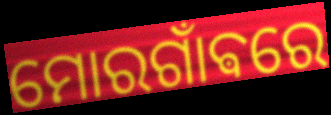
ମୋରଗାଁଵରେ